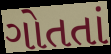
ગોતતાં